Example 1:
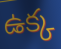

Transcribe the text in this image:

ఉక్క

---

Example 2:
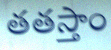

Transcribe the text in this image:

తతస్తాం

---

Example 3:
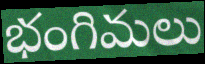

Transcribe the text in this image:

భంగిమలు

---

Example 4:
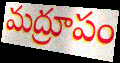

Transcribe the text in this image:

మద్రూపం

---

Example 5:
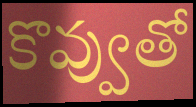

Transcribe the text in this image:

కొవ్వుతో